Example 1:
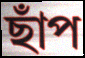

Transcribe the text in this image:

ছাঁপ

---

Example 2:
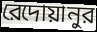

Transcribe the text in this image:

রেদোয়ানুর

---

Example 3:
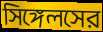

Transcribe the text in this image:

সিঙ্গেলসের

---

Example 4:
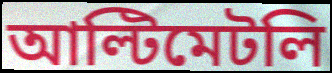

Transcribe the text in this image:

আল্টিমেটলি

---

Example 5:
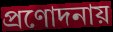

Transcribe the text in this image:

প্রণোদনায়